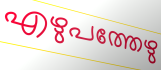
എഴുപത്തേഴു